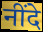
नींदे